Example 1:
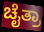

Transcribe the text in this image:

ಚೈತ್ರಾ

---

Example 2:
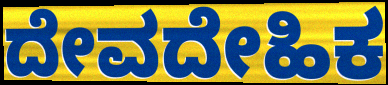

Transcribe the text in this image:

ದೇವದೇಹಿಕ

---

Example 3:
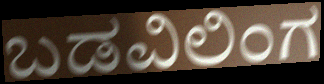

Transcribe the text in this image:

ಬಡವಿಲಿಂಗ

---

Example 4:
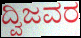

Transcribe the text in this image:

ದ್ವಿಜವರ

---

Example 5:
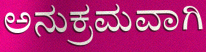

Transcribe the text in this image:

ಅನುಕ್ರಮವಾಗಿ